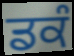
ਡਕੰ